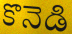
కొనెడి